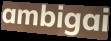
ambigai